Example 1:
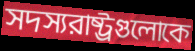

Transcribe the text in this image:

সদস্যরাষ্ট্রগুলোকে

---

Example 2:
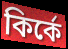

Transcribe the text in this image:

কির্কে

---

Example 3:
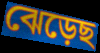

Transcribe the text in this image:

ঝেড়েছ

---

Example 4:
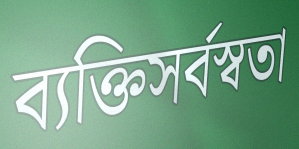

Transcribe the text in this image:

ব্যক্তিসর্বস্বতা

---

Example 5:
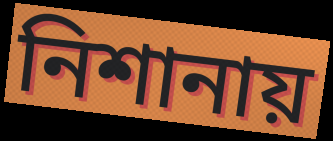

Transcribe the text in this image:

নিশানায়